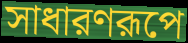
সাধারণরূপে